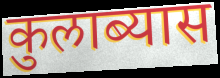
कुलाब्यास